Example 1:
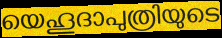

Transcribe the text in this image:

യെഹൂദാപുത്രിയുടെ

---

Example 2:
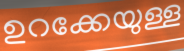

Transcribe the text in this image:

ഉറക്കേയുള്ള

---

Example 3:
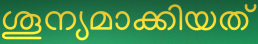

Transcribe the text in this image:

ശൂന്യമാക്കിയത്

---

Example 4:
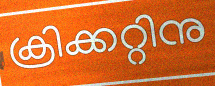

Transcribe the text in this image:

ക്രിക്കറ്റിനു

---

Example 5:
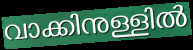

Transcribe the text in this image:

വാക്കിനുള്ളിൽ